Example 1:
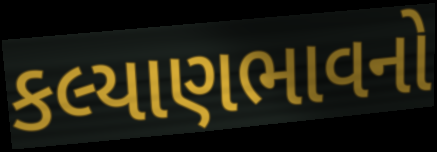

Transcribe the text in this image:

કલ્યાણભાવનો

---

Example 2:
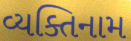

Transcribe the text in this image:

વ્યક્તિનામ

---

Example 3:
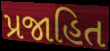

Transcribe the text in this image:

પ્રજાહિત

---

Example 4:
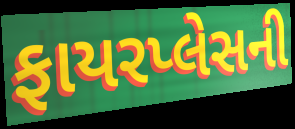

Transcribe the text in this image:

ફાયરપ્લેસની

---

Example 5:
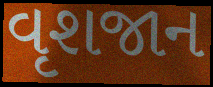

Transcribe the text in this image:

વૃશજાન